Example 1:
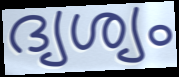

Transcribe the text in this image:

ദ്യശ്യം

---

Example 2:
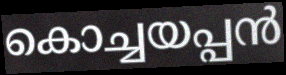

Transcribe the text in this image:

കൊച്ചയപ്പൻ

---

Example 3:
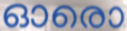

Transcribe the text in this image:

ഓരൊ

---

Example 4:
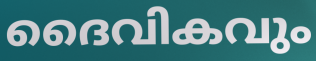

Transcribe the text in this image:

ദൈവികവും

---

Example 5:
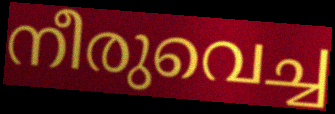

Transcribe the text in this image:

നീരുവെച്ച